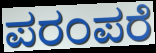
ಪರಂಪರೆ